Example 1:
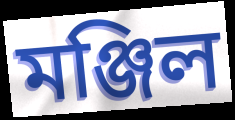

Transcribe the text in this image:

মঞ্জিল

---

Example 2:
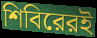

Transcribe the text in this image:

শিবিরেরই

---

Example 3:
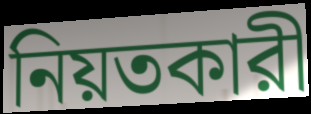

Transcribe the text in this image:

নিয়তকারী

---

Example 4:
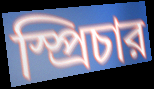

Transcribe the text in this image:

স্প্রিচার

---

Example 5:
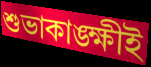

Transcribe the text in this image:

শুভাকাঙ্ক্ষীই